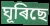
ঘূৰিছে